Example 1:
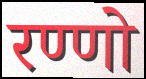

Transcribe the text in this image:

रण्णो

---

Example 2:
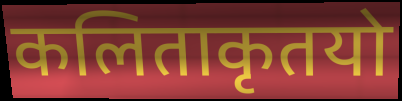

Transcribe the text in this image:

कलिताकृतयो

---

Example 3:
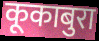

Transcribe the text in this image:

कूकाबुरा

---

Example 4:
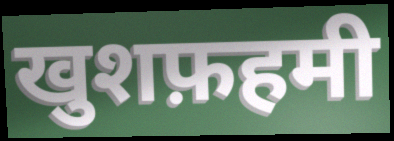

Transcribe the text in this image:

खुशफ़हमी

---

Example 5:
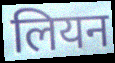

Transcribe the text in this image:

लियन